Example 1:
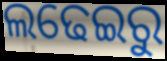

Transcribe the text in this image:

ଲଢେଇରୁ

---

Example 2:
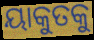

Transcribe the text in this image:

ୟାକୁତକୁ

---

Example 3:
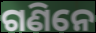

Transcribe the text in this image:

ଗଣିନେ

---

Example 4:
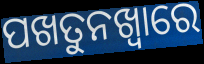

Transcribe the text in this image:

ପଖତୁନଖ୍ୱାରେ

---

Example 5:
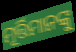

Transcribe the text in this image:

ମୂର୍ତ୍ତିମାନଙ୍କୁ